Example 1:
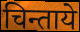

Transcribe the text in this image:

चिन्ताये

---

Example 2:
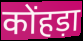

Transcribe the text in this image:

कोंहड़ा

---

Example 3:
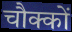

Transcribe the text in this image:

चौक्कों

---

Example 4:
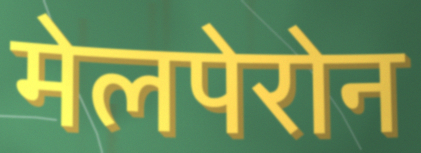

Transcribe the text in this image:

मेलपेरोन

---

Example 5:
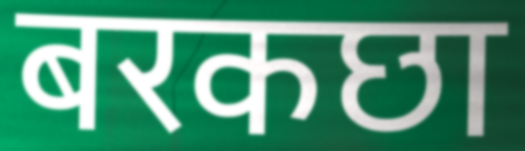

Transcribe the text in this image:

बरकछा